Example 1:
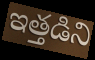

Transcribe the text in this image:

ఇత్తడిని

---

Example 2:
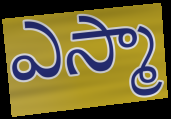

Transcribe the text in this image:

ఎస్మా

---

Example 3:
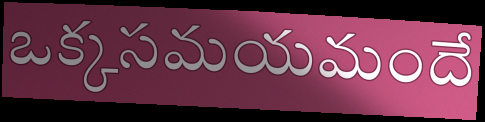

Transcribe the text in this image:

ఒక్కసమయమందే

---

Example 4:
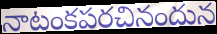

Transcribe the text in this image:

నాటంకపరచినందున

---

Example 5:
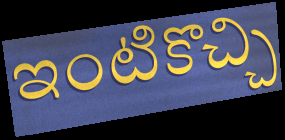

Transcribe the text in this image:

ఇంటికొచ్చి